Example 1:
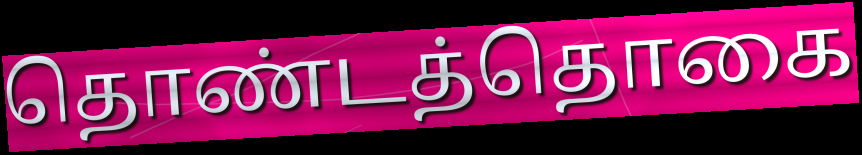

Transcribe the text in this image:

தொண்டத்தொகை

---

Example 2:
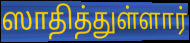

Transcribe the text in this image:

ஸாதித்துள்ளார்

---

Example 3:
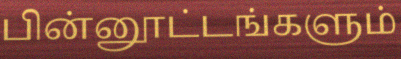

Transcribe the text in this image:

பின்னூட்டங்களும்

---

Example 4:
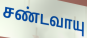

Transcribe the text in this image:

சண்டவாயு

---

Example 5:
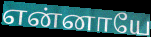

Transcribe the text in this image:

என்னாயே